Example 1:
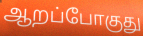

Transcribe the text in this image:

ஆறப்போகுது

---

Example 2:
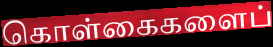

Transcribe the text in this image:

கொள்கைகளைப்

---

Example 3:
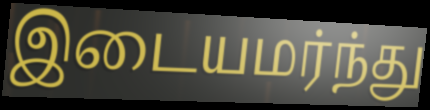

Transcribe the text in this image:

இடையமர்ந்து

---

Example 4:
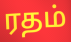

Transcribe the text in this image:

ரதம்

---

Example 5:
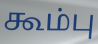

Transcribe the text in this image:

கூம்பு